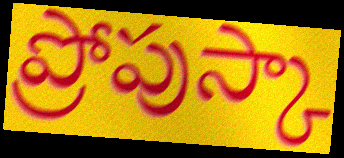
ప్రోపుస్కా